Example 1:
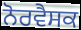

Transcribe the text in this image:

ਨੋਰਵੈਸਕ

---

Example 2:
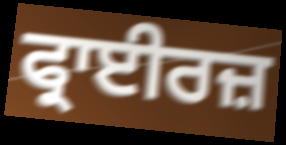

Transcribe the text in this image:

ਫ੍ਰਾਈਰਜ਼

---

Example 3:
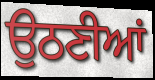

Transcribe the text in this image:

ਉਠਣੀਆਂ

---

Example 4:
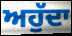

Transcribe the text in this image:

ਅਹੁੱਦਾ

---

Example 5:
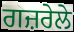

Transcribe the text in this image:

ਗਜ਼ਰੇਲੇ